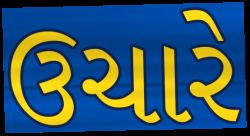
ઉચારે